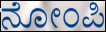
ನೋಂಪಿ